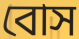
বোস